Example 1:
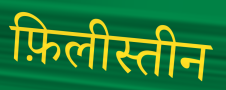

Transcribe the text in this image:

फ़िलीस्तीन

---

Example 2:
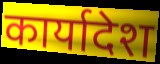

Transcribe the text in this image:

कार्यादेश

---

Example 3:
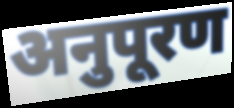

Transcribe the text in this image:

अनुपूरण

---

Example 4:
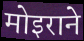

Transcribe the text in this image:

मोइराने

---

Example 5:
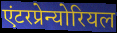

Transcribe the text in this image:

एंटरप्रेन्योरियल